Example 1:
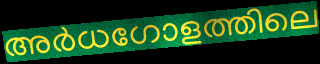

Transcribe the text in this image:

അർധഗോളത്തിലെ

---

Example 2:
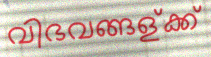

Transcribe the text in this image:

വിഭവങ്ങള്ക്ക്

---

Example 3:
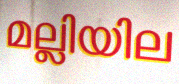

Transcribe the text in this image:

മല്ലിയില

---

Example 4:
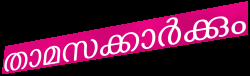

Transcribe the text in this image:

താമസക്കാർക്കും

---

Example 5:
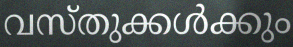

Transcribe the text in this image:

വസ്തുക്കൾക്കും